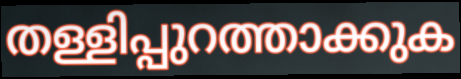
തള്ളിപ്പുറത്താക്കുക